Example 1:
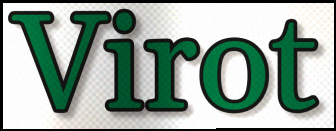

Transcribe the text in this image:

Virot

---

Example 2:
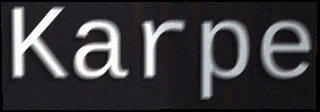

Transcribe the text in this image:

Karpe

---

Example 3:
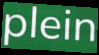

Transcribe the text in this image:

plein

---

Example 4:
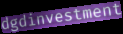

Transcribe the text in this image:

dgdinvestment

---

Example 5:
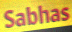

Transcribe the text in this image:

Sabhas